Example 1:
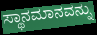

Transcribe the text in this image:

ಸ್ಥಾನಮಾನವನ್ನು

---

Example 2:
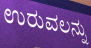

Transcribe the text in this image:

ಉರುವಲನ್ನು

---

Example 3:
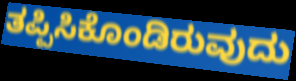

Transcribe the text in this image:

ತಪ್ಪಿಸಿಕೊಂಡಿರುವುದು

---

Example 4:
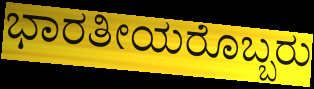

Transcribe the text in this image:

ಭಾರತೀಯರೊಬ್ಬರು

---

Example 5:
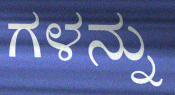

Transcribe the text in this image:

ಗಳನ್ನು